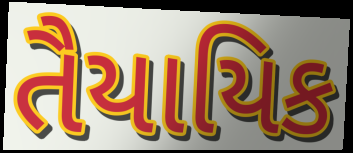
તૈયાયિક